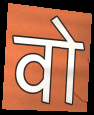
वो